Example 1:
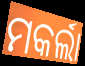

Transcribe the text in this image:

ମକର୍ଲା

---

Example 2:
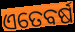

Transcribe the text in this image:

ଏତେବର୍ଷ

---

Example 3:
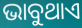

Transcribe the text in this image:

ଭାବୁଥାଏ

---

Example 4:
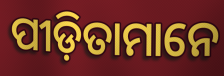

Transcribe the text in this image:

ପୀଡ଼ିତାମାନେ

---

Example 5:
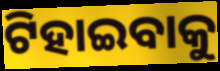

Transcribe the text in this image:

ଟିହାଇବାକୁ